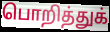
பொறித்துக்